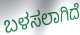
ಬಳಸಲಾಗಿದೆ